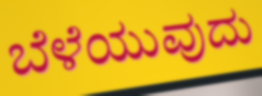
ಬೆಳೆಯುವುದು